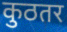
कुठतर